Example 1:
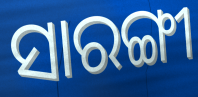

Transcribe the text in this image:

ସାରଙ୍ଗୀ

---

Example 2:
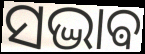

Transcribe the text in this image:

ସଦ୍ଭାଵ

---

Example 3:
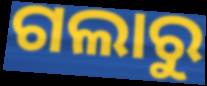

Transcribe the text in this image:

ଗଲାରୁ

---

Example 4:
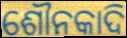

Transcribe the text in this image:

ଶୌନକାଦି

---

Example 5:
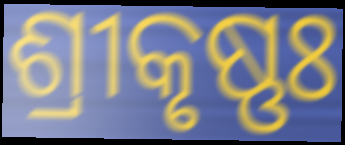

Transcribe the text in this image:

ଶ୍ରୀକୃଷ୍ଣଃ